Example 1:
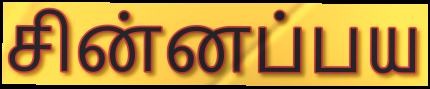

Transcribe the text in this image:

சின்னப்பய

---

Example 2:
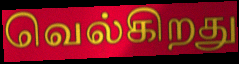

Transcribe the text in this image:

வெல்கிறது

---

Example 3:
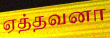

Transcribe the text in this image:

ஏத்தவனா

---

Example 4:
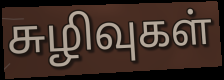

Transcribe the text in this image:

சுழிவுகள்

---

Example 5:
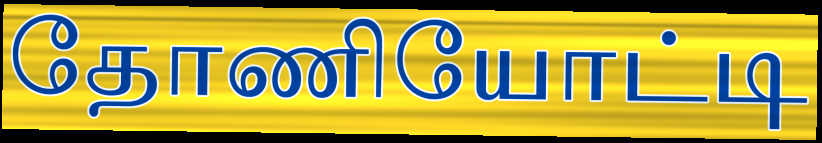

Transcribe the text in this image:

தோணியோட்டி